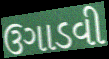
ઉગાડવી